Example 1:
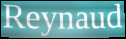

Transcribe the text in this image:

Reynaud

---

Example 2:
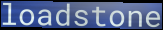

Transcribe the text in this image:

loadstone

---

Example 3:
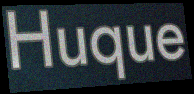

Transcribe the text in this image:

Huque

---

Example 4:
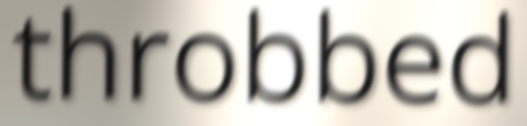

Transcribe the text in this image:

throbbed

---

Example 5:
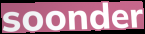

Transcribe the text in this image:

soonder